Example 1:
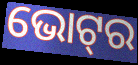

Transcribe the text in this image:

ଭୋଟ୍‍ର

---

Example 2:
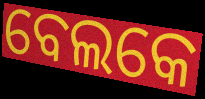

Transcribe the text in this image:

ବେଲକେ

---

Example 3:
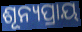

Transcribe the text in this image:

ଶୂନ୍ୟପ୍ରାୟ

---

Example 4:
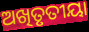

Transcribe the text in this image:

ଅଖିତୃତୀୟା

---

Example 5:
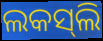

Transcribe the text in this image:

ଲକସ୍‍ଲି